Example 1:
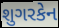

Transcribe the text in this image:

શુગરકેન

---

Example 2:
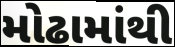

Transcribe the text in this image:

મોઢામાંથી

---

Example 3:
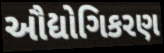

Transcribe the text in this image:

ઔદ્યોગિકરણ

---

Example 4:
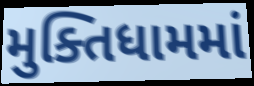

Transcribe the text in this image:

મુક્તિધામમાં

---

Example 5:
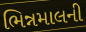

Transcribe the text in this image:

ભિન્નમાલની